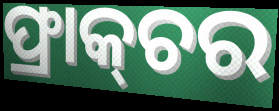
ଫ୍ରାକ୍‌ଚର